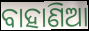
ବାହାଣିଆ